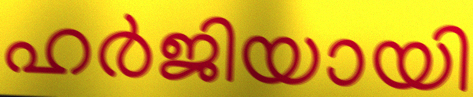
ഹർജിയായി